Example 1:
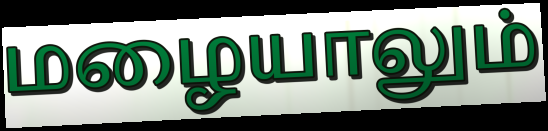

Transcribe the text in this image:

மழையாலும்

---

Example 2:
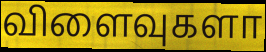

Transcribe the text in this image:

விளைவுகளா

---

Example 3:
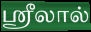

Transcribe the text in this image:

ஸ்ரீலால்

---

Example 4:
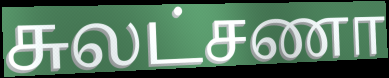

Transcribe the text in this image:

சுலட்சணா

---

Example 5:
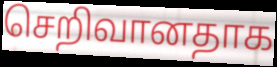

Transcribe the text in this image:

செறிவானதாக